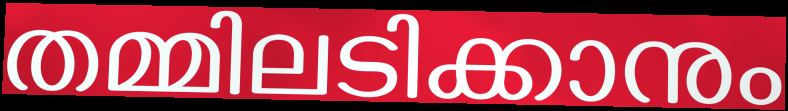
തമ്മിലടിക്കാനും